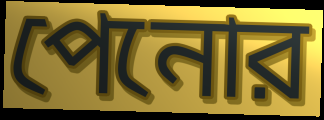
পেনোর